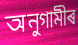
অনুগামীৰ